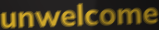
unwelcome